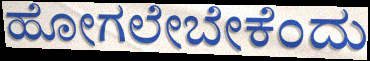
ಹೋಗಲೇಬೇಕೆಂದು